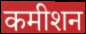
कमीशन